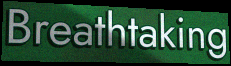
Breathtaking